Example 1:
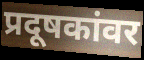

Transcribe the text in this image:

प्रदूषकांवर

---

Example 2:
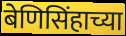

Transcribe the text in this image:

बेणिसिंहाच्या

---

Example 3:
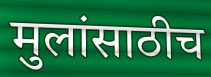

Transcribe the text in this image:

मुलांसाठीच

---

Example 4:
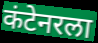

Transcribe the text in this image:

कंटेनरला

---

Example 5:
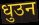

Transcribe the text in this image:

धुउन